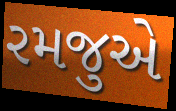
રમજુએ